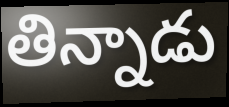
తిన్నాడు